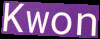
Kwon